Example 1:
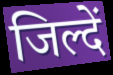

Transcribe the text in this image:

जिल्दें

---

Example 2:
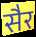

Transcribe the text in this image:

सैर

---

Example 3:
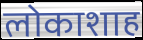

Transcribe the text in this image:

लोकाशाह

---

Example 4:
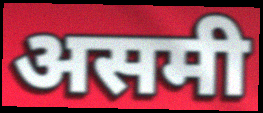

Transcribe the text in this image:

असमी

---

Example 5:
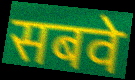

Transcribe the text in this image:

सबवे